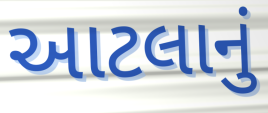
આટલાનું